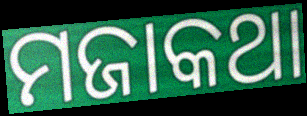
ମଜାକଥା